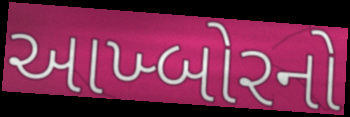
આખ્બોરનો